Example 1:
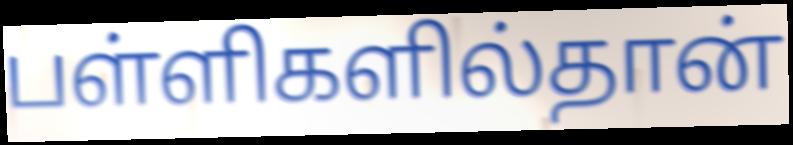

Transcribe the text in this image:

பள்ளிகளில்தான்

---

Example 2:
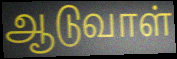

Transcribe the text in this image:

ஆடுவாள்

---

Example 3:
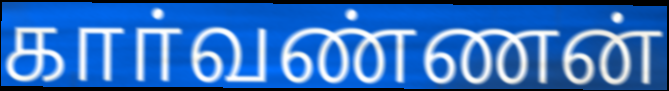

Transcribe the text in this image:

கார்வண்ணன்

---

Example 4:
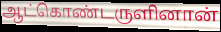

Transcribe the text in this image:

ஆட்கொண்டருளினான்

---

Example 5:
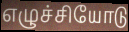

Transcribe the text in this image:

எழுச்சியோடு